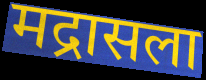
मद्रासला